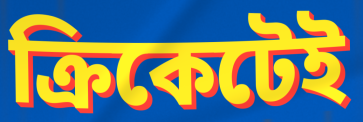
ক্রিকেটেই